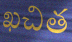
ఖచిత